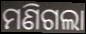
ମଣିଗଲା